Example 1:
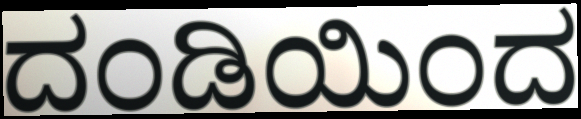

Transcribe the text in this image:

ದಂಡಿಯಿಂದ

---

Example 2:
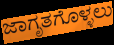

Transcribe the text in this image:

ಜಾಗೃತಗೊಳ್ಳಲು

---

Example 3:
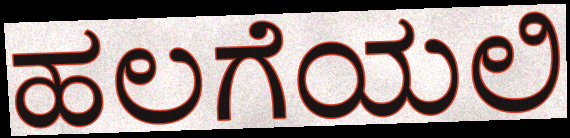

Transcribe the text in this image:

ಹಲಗೆಯಲಿ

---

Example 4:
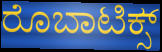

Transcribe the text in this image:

ರೊಬಾಟಿಕ್ಸ್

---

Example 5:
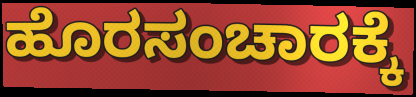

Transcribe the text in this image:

ಹೊರಸಂಚಾರಕ್ಕೆ